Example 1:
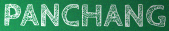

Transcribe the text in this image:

PANCHANG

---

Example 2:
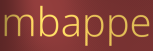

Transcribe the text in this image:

mbappe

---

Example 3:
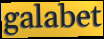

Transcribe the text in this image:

galabet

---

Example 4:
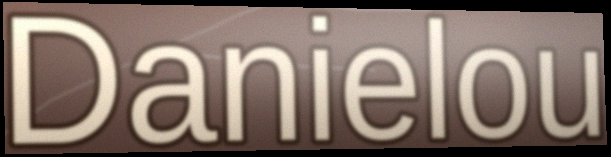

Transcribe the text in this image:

Danielou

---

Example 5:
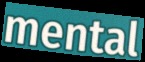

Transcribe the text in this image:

mental